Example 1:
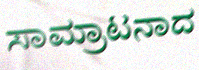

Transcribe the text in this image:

ಸಾಮ್ರಾಟನಾದ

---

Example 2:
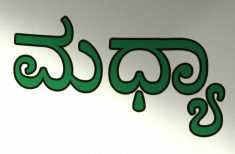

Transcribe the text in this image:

ಮಧ್ಯಾ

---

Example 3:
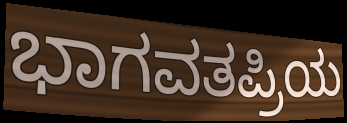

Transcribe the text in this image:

ಭಾಗವತಪ್ರಿಯ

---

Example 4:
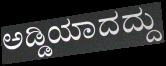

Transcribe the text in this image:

ಅಡ್ಡಿಯಾದದ್ದು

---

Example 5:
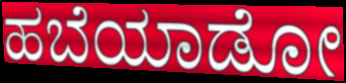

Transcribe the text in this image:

ಹಬೆಯಾಡೋ